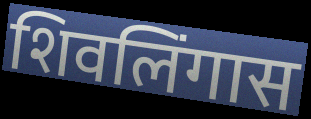
शिवलिंगास